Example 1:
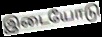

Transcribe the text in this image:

இடையோடு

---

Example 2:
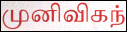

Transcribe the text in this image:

முனிவிகந்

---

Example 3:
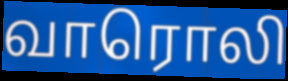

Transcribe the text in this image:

வாரொலி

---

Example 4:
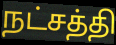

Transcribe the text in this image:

நட்சத்தி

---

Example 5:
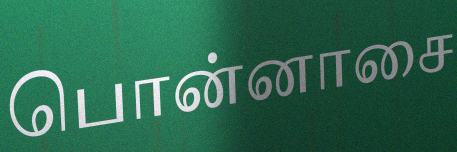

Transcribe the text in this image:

பொன்னாசை